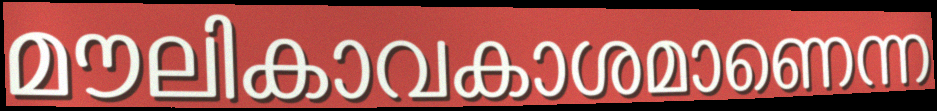
മൗലികാവകാശമാണെന്ന